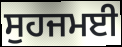
ਸੁਹਜਮਈ